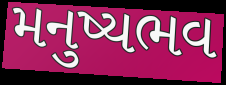
મનુષ્યભવ